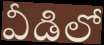
వీడిలో